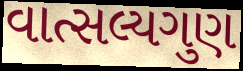
વાત્સલ્યગુણ